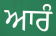
ਆਰੰ